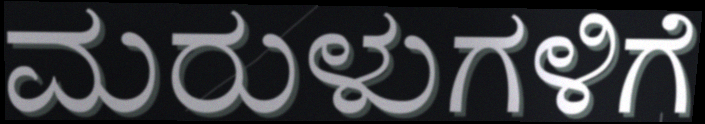
ಮರುಳುಗಳಿಗೆ